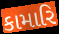
કામારિ